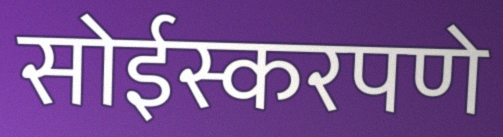
सोईस्करपणे